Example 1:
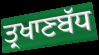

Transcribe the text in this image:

ਤ੍ਰਖਾਣਬੱਧ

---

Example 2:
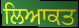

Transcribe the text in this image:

ਲਿਆਕਤ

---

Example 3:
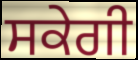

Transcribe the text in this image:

ਸਕੇਗੀ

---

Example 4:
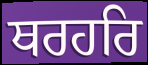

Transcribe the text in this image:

ਥਰਹਰਿ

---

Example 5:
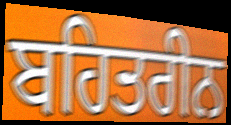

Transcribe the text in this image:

ਬਹਿਤਰੀਨ